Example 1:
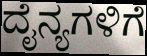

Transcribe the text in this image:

ದೈನ್ಯಗಳಿಗೆ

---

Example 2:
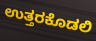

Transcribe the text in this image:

ಉತ್ತರಕೊಡಲಿ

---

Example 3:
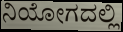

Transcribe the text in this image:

ನಿಯೋಗದಲ್ಲಿ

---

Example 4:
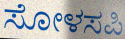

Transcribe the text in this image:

ಸೋಳಸಪಿ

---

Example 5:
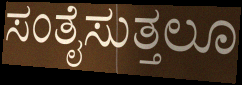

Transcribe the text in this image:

ಸಂತೈಸುತ್ತಲೂ